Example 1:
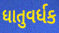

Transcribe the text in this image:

ધાતુવર્ધક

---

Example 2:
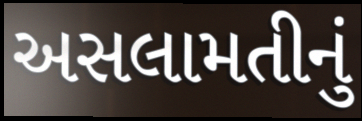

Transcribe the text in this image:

અસલામતીનું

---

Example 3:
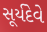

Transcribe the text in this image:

સૂર્યદેવે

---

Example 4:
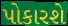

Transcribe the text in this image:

પોકારશે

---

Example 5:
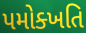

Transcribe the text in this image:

પમોક્ખતિ